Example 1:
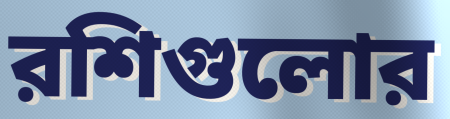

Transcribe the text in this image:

রশিগুলোর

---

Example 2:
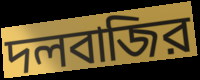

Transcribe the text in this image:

দলবাজির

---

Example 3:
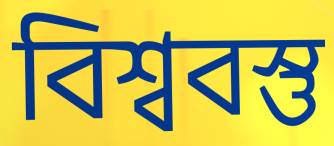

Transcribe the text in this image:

বিশ্ববস্তু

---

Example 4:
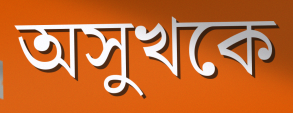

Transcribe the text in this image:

অসুখকে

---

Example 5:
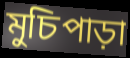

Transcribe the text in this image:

মুচিপাড়া